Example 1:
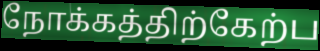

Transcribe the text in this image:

நோக்கத்திற்கேற்ப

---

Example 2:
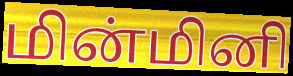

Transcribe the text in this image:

மின்மினி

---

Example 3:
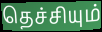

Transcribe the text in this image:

தெச்சியும்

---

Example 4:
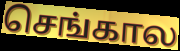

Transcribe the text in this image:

செங்கால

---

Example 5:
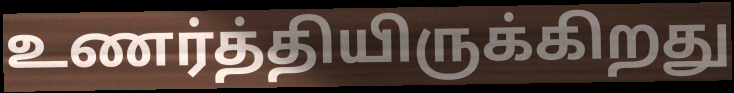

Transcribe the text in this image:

உணர்த்தியிருக்கிறது